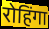
रोहिंगा